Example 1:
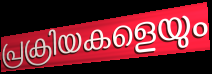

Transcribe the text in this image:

പ്രക്രിയകളെയും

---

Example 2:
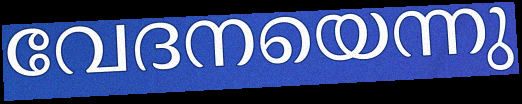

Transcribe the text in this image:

വേദനയെന്നു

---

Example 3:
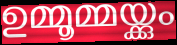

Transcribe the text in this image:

ഉമ്മൂമ്മയ്ക്കും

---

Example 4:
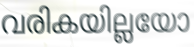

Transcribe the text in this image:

വരികയില്ലയോ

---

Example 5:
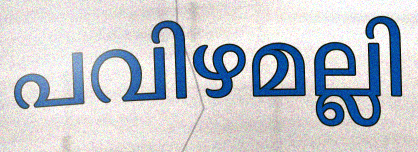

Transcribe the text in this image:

പവിഴമല്ലി